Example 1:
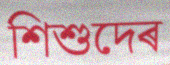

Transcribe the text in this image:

শিশুদেৰ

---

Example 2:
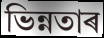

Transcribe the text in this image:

ভিন্নতাৰ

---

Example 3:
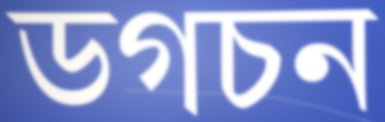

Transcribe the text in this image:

ডগচন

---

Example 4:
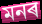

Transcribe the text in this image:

মনৰ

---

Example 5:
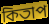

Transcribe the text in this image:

কিতাপ